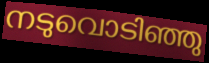
നടുവൊടിഞ്ഞു